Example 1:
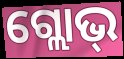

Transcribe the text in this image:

ଗ୍ଲୋଭ୍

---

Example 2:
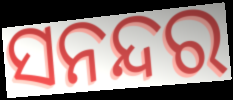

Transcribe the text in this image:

ସନନ୍ଦର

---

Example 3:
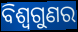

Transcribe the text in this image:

ବିଶ୍ୱଗୁଣର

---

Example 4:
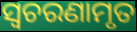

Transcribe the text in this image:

ସ୍ଵଚରଣାମୃତ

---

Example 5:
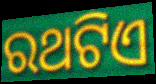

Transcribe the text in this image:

ରଥଟିଏ